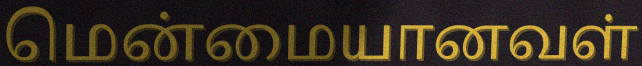
மென்மையானவள்